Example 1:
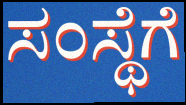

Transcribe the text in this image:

ಸಂಸ್ಥೆಗೆ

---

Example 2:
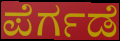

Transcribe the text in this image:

ಪೆರ್ಗಡೆ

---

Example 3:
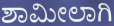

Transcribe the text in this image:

ಶಾಮೀಲಾಗಿ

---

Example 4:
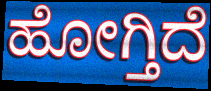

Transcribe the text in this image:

ಹೋಗ್ತಿದೆ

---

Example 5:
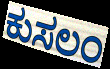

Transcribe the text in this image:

ಕುಸಲಂ